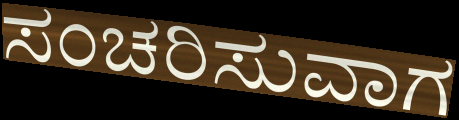
ಸಂಚರಿಸುವಾಗ